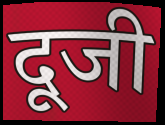
दूजी